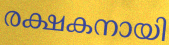
രക്ഷകനായി